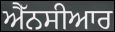
ਐੱਨਸੀਆਰ